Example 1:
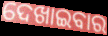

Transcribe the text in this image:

ଦେଖାଇବାର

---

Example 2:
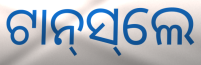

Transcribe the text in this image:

ଟାନ୍‌ସ୍‌ଲେ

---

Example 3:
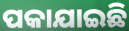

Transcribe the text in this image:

ପକାଯାଇଛି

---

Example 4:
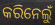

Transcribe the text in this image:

କରିନେଲୁଁ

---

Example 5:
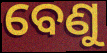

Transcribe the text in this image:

ବେଣୁ